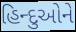
હિન્દુઓને